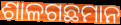
ଶାଳଗଛମାନ